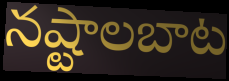
నష్టాలబాట